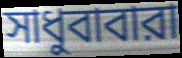
সাধুবাবারা